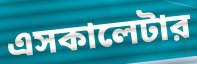
এসকালেটার